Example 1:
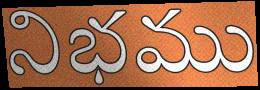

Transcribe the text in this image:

నిభము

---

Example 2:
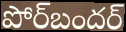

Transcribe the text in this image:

పోర్‌బందర్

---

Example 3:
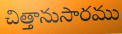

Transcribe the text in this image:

చిత్తానుసారము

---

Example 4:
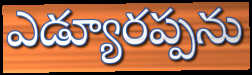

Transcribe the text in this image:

ఎడ్యూరప్పను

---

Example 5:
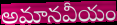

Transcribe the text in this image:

అమానవీయం